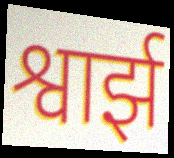
श्वार्झ